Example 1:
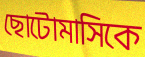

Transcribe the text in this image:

ছোটোমাসিকে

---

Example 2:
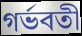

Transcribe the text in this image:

গর্ভবতী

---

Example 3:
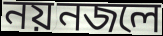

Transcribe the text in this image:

নয়নজলে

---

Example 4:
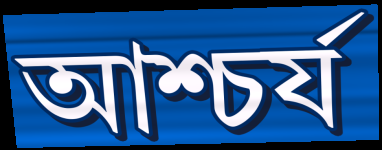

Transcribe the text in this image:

আশ্চর্য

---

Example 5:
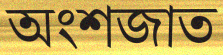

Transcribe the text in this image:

অংশজাত